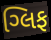
ગ્લિફ